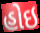
હોઇ